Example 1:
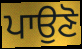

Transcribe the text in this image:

ਪਾਉਣੋ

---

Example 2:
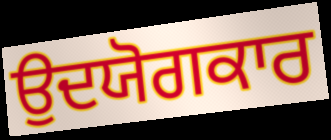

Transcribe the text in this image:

ਉਦਯੋਗਕਾਰ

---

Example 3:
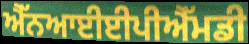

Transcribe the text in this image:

ਐੱਨਆਈਈਪੀਐੱਮਡੀ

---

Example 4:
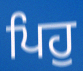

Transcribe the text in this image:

ਪਿਹੁ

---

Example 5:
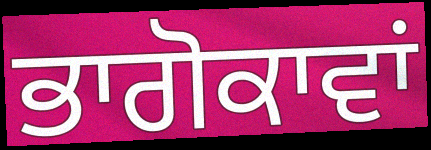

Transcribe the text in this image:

ਭਾਗੋਕਾਵਾਂ